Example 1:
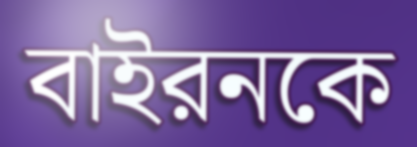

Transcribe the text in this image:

বাইরনকে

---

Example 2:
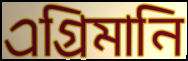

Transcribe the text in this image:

এগ্রিমানি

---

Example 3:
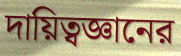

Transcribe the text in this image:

দায়িত্বজ্ঞানের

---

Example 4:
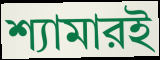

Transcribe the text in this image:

শ্যামারই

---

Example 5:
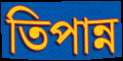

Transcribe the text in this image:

তিপান্ন